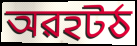
অৱহটঠ